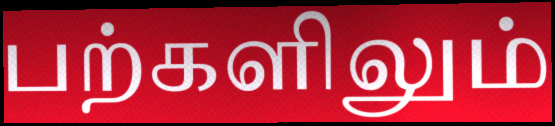
பற்களிலும்